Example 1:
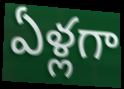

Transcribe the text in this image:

ఏళ్లగా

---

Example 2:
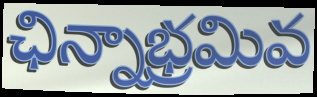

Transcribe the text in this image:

ఛిన్నాభ్రమివ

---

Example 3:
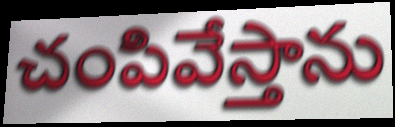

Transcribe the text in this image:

చంపివేస్తాను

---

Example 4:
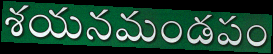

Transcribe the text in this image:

శయనమండపం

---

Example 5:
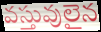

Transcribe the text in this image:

వస్తువులైన